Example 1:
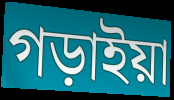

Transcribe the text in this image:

গড়াইয়া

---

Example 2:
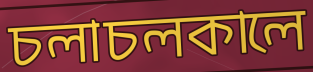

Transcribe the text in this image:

চলাচলকালে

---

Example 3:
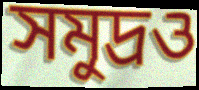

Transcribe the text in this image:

সমুদ্রও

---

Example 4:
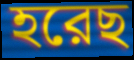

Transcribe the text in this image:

হরেছ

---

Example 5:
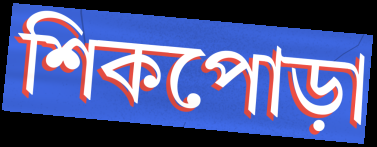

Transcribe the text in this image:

শিকপোড়া